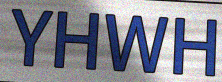
YHWH